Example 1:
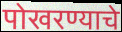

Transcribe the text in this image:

पोखरण्याचे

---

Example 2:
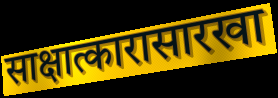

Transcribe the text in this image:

साक्षात्कारासारखा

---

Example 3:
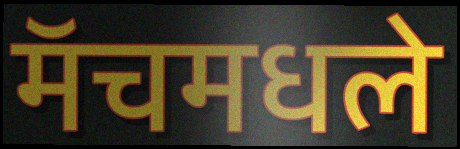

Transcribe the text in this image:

मॅचमधले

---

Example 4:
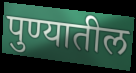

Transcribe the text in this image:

पुण्यातील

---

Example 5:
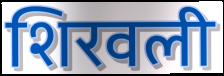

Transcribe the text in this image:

शिरवली